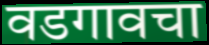
वडगावचा